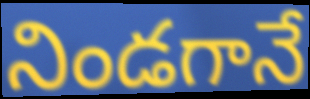
నిండగానే